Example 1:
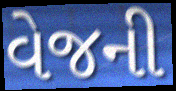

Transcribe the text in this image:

વેજની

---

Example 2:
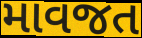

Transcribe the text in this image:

માવજત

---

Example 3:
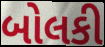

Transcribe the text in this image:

બોલકી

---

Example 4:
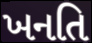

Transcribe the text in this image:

ખનતિ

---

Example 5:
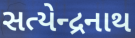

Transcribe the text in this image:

સત્યેન્દ્રનાથ